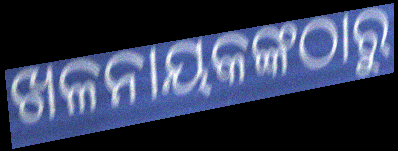
ଖଳନାୟକଙ୍କଠାରୁ